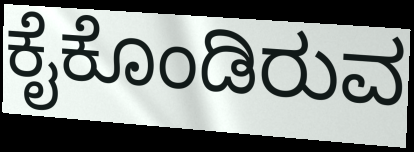
ಕೈಕೊಂಡಿರುವ